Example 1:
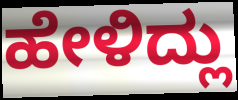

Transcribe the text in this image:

ಹೇಳಿದ್ಲು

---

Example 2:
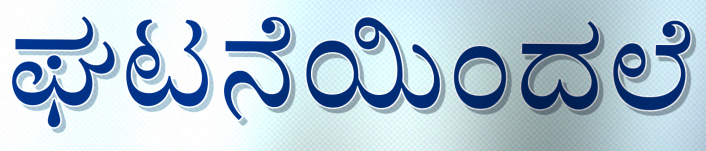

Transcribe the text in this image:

ಘಟನೆಯಿಂದಲೆ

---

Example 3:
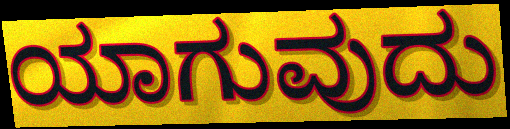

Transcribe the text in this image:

ಯಾಗುವುದು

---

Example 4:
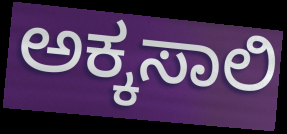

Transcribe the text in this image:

ಅಕ್ಕಸಾಲಿ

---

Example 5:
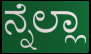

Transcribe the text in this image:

ನ್ನೆಲ್ಲಾ